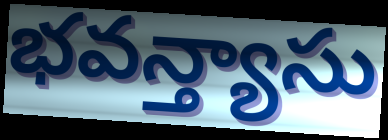
భవన్త్యాసు